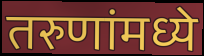
तरुणांमध्ये